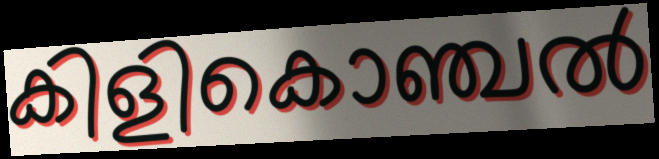
കിളികൊഞ്ചൽ